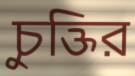
চুক্তির